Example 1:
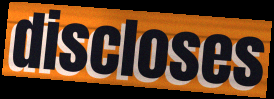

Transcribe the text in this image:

discloses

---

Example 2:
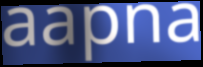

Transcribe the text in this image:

aapna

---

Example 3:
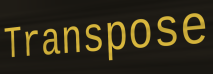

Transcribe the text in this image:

Transpose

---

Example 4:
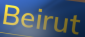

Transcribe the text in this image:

Beirut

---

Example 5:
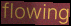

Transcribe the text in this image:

flowing